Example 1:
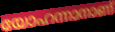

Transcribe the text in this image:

യോഹന്നാനാണ്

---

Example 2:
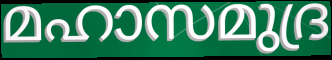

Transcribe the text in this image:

മഹാസമുദ്ര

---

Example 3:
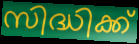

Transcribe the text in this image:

സിദ്ധിക്ക്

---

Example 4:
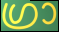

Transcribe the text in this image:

ഗ്രാ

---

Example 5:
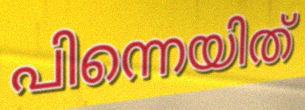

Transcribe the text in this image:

പിന്നെയിത്